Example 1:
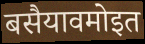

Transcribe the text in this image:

बसैयावमोइत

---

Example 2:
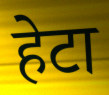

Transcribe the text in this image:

हेटा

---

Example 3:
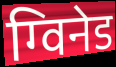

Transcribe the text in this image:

ग्विनेड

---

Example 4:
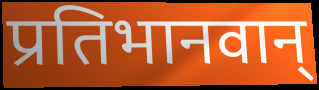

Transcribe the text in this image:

प्रतिभानवान्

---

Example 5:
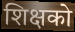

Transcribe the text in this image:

शिक्षको